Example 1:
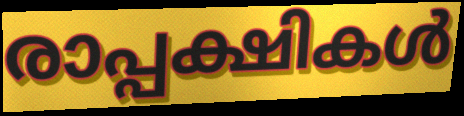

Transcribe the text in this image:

രാപ്പക്ഷികൾ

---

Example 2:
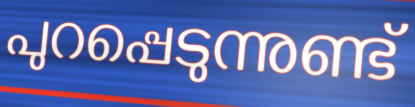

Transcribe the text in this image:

പുറപ്പെടുന്നുണ്ട്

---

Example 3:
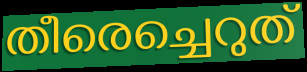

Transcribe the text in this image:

തീരെച്ചെറുത്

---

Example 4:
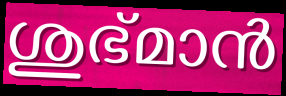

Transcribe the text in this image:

ശുഭ്മാൻ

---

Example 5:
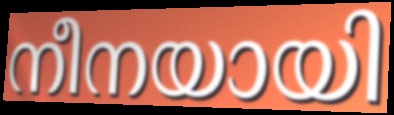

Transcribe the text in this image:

നീനയായി